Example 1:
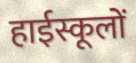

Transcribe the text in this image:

हाईस्कूलों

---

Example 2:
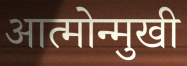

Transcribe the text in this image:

आत्मोन्मुखी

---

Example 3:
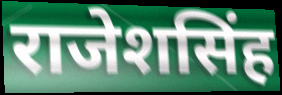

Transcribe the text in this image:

राजेशसिंह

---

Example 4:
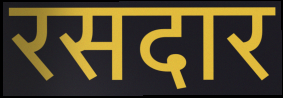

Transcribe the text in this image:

रसदार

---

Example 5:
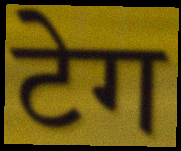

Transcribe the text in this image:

टेग